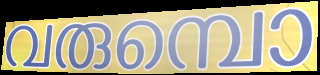
വരുമ്പൊ